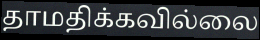
தாமதிக்கவில்லை